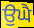
ਉਘੈ